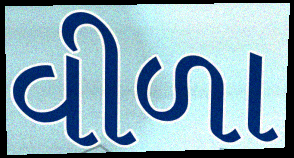
વીળા